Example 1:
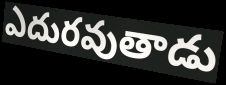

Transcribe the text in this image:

ఎదురవుతాడు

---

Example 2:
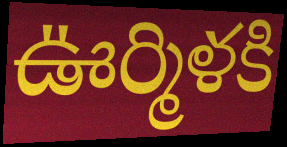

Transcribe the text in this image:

ఊర్మిళకి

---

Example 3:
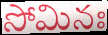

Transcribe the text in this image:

సోమినః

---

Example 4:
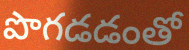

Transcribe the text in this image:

పొగడడంతో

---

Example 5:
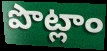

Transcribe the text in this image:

పొట్లాం